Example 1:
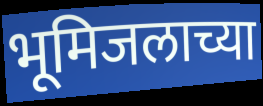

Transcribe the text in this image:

भूमिजलाच्या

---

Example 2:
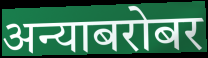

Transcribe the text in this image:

अन्याबरोबर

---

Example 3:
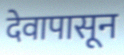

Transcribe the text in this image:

देवापासून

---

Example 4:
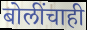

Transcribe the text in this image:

बोलींचाही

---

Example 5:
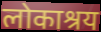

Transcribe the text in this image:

लोकाश्रय